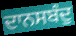
ਦਾਨਸਬੰਦੁ